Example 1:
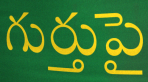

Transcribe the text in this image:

గుర్తుపై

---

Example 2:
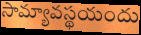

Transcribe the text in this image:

సామ్యావస్థయందు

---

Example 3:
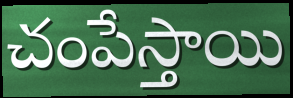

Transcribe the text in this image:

చంపేస్తాయి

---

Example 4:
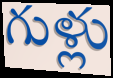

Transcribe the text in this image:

గుళ్లు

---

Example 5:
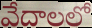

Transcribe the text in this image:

వేదాలలో